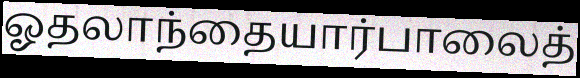
ஓதலாந்தையார்பாலைத்